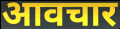
आवचार